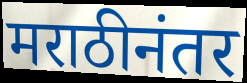
मराठीनंतर